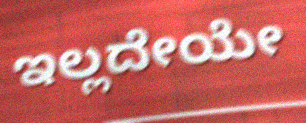
ಇಲ್ಲದೇಯೇ